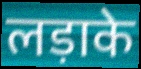
लड़ाके